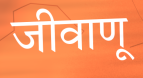
जीवाणू